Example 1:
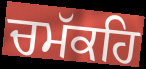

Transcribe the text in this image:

ਚਮੱਕਹਿ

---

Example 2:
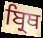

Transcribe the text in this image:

ਬ੍ਰਿਥ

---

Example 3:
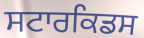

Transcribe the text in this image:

ਸਟਾਰਕਿਡਸ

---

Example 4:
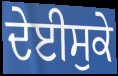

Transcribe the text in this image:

ਦੇਈਸੁਕੇ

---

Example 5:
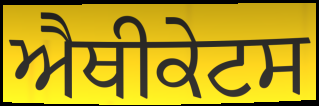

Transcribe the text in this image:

ਐਥੀਕੇਟਸ